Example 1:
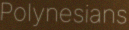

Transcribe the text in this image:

Polynesians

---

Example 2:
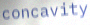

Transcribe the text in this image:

concavity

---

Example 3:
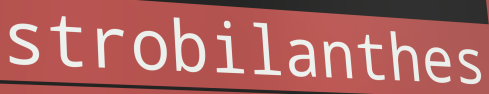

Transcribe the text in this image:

strobilanthes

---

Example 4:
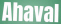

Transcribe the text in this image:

Ahaval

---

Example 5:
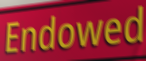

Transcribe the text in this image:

Endowed